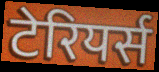
टेरियर्स